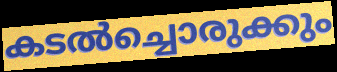
കടൽച്ചൊരുക്കും